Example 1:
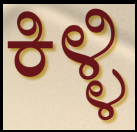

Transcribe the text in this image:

ಕಿಳ್ಳಿ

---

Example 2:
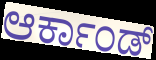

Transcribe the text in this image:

ಆರ್ಕಾಂಡ್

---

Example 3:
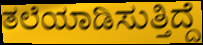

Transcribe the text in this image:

ತಲೆಯಾಡಿಸುತ್ತಿದ್ದೆ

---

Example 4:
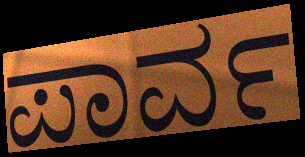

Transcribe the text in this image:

ಪಾರ್ವ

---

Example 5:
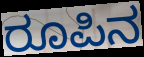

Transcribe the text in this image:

ರೂಪಿನ